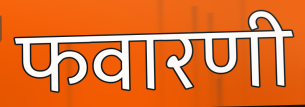
फवारणी